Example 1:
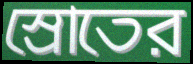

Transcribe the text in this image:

স্রোতের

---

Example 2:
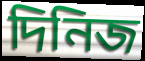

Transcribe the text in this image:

দিনিজ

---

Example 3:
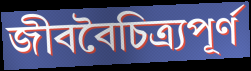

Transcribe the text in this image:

জীববৈচিত্র্যপূর্ণ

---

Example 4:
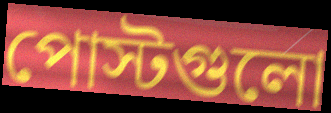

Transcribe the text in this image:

পোস্টগুলো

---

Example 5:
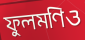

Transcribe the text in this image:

ফুলমণিও